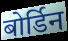
बोर्डिन